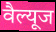
वैल्यूज